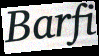
Barfi